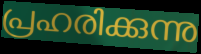
പ്രഹരിക്കുന്നു